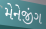
મેનેજીંગ